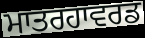
ਮਾਤਰਹਾਵਰਡ